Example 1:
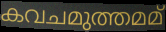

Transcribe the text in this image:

കവചമുത്തമമ്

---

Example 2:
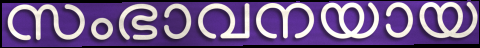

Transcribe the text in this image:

സംഭാവനയായ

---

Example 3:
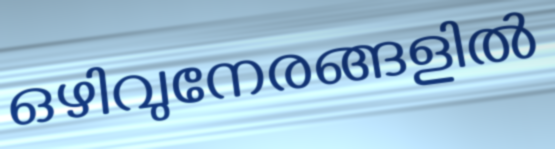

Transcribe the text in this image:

ഒഴിവുനേരങ്ങളിൽ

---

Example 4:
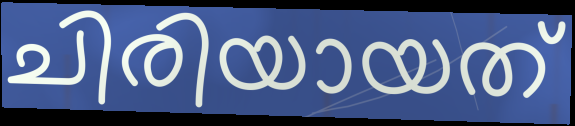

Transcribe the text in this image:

ചിരിയായത്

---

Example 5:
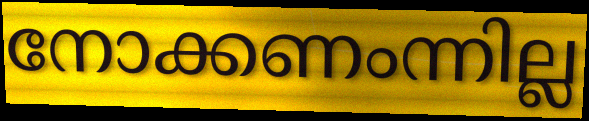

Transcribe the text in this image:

നോക്കണംന്നില്ല